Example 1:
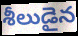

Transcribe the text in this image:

శీలుడైన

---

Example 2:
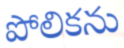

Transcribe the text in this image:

పోలికను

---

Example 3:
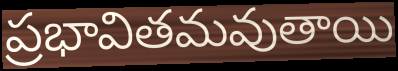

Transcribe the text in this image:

ప్రభావితమవుతాయి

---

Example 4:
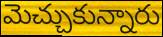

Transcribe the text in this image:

మెచ్చుకున్నారు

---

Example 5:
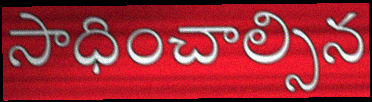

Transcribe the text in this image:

సాధించాల్సిన